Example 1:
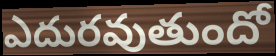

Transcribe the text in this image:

ఎదురవుతుందో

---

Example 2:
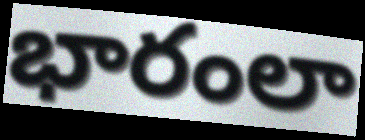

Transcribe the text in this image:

భారంలా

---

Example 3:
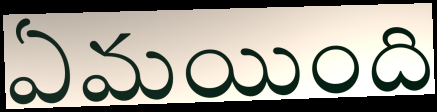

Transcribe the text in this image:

ఏమయింది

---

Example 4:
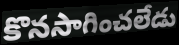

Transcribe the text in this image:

కొనసాగించలేడు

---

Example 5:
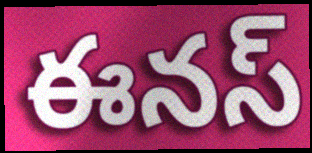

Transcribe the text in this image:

ఈనస్